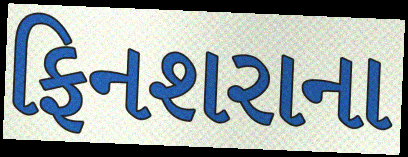
ફિનશરાના